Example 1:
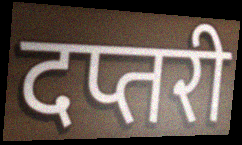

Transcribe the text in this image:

दप्तरी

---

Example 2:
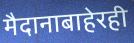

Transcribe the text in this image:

मैदानाबाहेरही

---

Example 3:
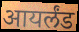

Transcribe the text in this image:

आयर्लंड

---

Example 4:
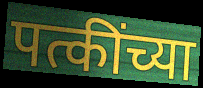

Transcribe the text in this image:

पत्कींच्या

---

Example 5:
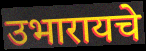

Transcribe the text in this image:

उभारायचे